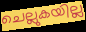
ചെല്ലുകയില്ല